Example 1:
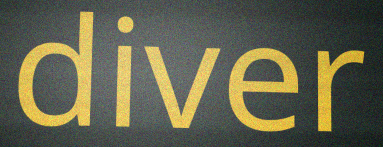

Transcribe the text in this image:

diver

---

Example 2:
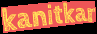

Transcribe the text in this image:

kanitkar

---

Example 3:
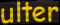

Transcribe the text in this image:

ulter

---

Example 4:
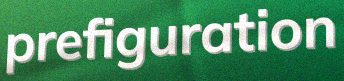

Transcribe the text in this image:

prefiguration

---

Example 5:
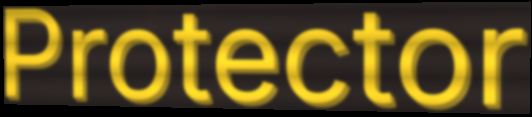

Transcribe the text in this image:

Protector